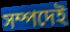
সম্পদেই